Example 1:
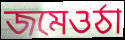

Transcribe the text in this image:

জমেওঠা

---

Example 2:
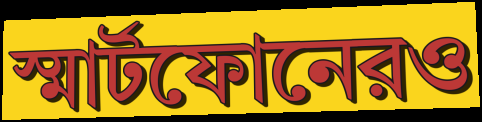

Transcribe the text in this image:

স্মার্টফোনেরও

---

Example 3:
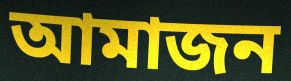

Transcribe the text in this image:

আমাজন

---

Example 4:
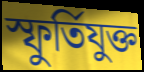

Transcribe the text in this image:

স্ফুর্তিযুক্ত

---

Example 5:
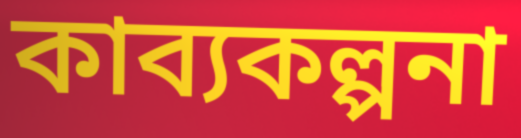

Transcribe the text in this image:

কাব্যকল্পনা